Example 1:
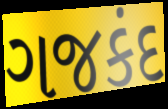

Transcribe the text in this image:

ગજકંદ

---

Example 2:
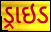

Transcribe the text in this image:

ડ્રાઇડ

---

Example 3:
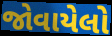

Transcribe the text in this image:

જોવાયેલો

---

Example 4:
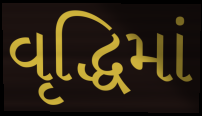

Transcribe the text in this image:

વૃદ્ધિમાં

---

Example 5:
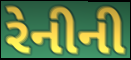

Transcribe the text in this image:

રેનીની